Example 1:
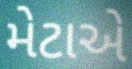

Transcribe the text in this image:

મેટાએ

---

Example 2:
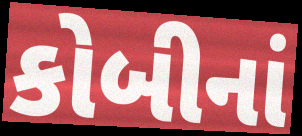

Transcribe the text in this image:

કોબીનાં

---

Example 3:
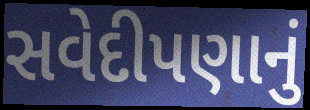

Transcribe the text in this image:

સવેદીપણાનું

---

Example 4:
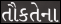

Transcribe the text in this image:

તૌકતેના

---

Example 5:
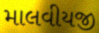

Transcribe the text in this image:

માલવીયજી